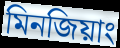
মিনজিয়াং